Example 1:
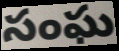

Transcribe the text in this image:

సంఘ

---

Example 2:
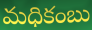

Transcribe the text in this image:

మధికంబు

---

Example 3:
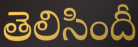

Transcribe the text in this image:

తెలిసిందీ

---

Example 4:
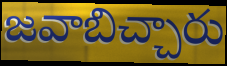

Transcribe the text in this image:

జవాబిచ్చారు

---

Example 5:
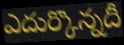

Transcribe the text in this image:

ఎదుర్కొన్నదీ